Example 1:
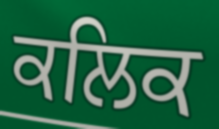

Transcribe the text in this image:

ਕਲਿਕ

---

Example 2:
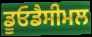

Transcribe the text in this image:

ਡੂਓਡੈਸੀਮਲ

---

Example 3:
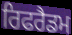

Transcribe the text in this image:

ਰਿਫਰੈਡਮ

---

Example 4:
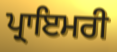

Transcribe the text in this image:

ਪ੍ਰਾਇਮਰੀ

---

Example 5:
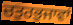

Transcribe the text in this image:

ਚਤੁਰਭੁਜਾਵਾਂ